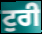
ਟੁਰੀ